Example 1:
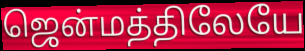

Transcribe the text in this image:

ஜென்மத்திலேயே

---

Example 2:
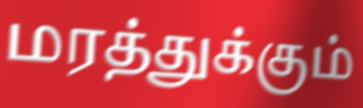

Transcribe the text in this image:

மரத்துக்கும்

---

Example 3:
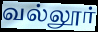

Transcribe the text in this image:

வல்லூர்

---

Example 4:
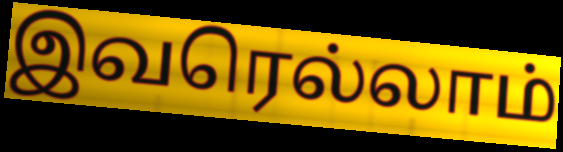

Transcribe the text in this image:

இவரெல்லாம்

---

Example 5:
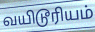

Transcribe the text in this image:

வயிடூரியம்